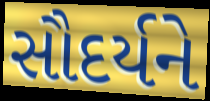
સૌદર્યને